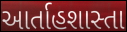
આર્તાહશાસ્તા